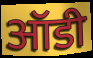
ऑडी